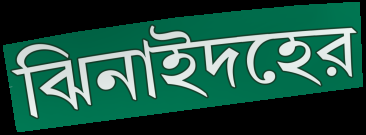
ঝিনাইদহের